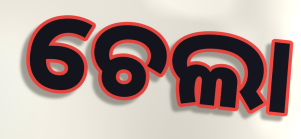
ଚେଲା